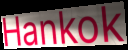
Hankok